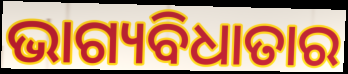
ଭାଗ୍ୟବିଧାତାର